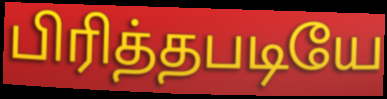
பிரித்தபடியே